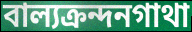
বাল্যক্রন্দনগাথা